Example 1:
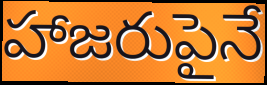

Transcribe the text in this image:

హాజరుపైనే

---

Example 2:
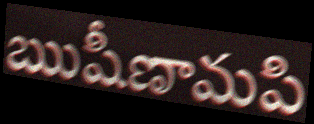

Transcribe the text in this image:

ఋషీణామపి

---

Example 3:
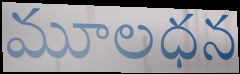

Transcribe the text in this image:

మూలధన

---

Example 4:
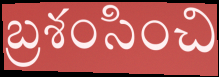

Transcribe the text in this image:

బ్రశంసించి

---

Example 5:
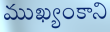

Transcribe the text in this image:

ముఖ్యంకాని